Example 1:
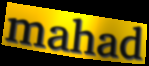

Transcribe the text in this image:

mahad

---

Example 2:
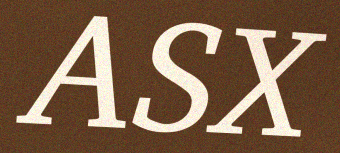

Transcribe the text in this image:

ASX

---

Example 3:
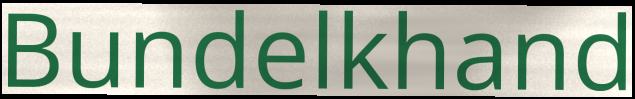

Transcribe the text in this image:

Bundelkhand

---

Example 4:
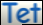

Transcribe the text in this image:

Tet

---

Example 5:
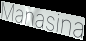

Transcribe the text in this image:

Manasina